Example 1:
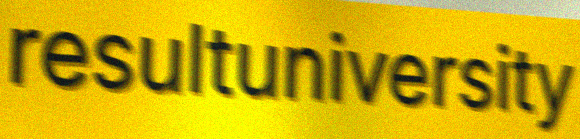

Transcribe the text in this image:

resultuniversity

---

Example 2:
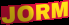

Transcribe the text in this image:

JORM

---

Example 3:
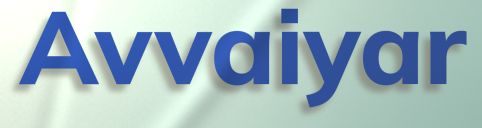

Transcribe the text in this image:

Avvaiyar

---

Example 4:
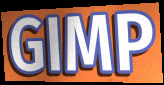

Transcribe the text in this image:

GIMP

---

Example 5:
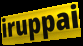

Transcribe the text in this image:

iruppai